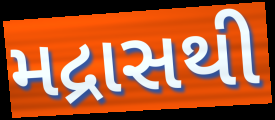
મદ્રાસથી